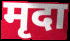
मृदा